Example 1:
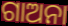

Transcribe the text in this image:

ଗାଅନା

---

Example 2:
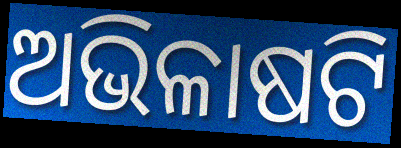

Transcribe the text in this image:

ଅଭିଳାଷଟି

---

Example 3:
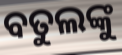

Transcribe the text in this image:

ବତୁଲଙ୍କୁ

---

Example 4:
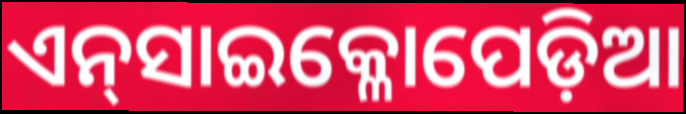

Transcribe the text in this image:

ଏନ୍‌ସାଇକ୍ଳୋପେଡ଼ିଆ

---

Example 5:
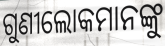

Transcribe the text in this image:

ଗୁଣୀଲୋକମାନଙ୍କୁ